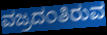
ವಜ್ರದಂತಿರುವ